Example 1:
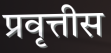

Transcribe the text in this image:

प्रवृत्तीस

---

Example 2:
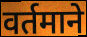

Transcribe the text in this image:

वर्तमाने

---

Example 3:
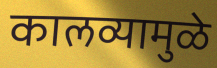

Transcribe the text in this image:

कालव्यामुळे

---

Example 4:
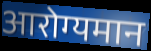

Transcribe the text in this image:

आरोग्यमान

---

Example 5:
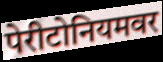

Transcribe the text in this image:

पेरीटोनियमवर